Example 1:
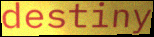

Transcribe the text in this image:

destiny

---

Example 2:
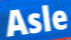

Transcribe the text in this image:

Asle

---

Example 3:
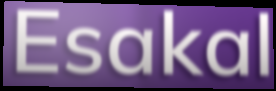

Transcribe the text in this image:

Esakal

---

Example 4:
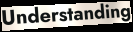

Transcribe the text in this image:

Understanding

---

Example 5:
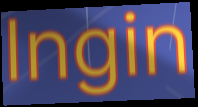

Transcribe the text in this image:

Ingin